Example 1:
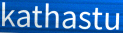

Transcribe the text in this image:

kathastu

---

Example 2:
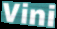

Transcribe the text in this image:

Vini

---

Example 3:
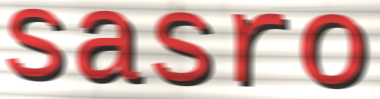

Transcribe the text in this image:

sasro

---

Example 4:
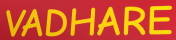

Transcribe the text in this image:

VADHARE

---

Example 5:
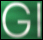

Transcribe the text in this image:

Gl